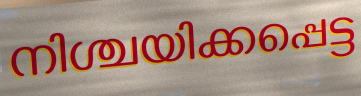
നിശ്ചയിക്കപ്പെട്ട